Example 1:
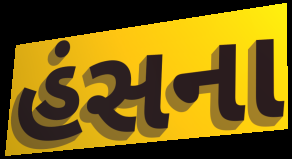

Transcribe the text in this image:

હંસના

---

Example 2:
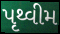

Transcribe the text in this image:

પૃથ્વીમ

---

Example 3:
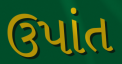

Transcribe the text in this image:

ઉપાંત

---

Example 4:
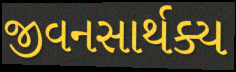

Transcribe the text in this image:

જીવનસાર્થક્ય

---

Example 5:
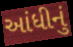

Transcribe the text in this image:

આંધીનું